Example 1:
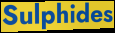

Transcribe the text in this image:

Sulphides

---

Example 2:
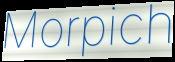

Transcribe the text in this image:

Morpich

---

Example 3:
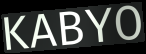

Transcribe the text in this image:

KABYO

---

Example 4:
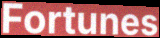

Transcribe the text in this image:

Fortunes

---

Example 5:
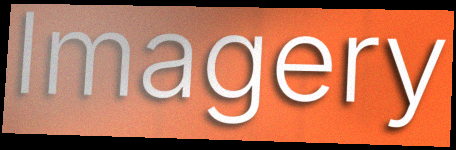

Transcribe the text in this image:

Imagery